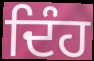
ਦਿੰਹ